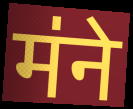
म॑ने